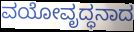
ವಯೋವೃದ್ಧನಾದ